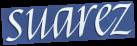
suarez